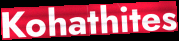
Kohathites